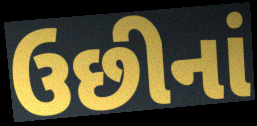
ઉછીનાં